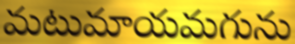
మటుమాయమగును